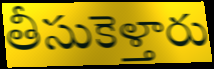
తీసుకెళ్తారు